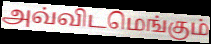
அவ்விடமெங்கும்